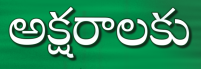
అక్షరాలకు